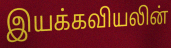
இயக்கவியலின்